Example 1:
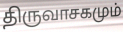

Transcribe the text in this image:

திருவாசகமும்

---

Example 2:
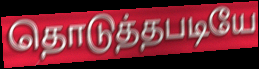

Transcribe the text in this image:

தொடுத்தபடியே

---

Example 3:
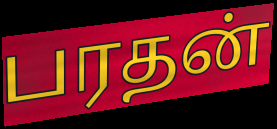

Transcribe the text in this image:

பரதன்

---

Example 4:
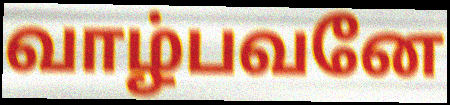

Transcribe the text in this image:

வாழ்பவனே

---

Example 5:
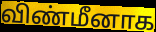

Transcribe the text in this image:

விண்மீனாக